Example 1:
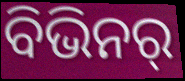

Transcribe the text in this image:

ବିଭିନର୍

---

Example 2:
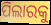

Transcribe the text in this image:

ପିଲାରକୁ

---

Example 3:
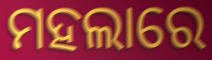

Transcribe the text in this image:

ମହଲାରେ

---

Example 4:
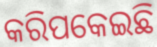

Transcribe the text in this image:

କରିପକେଇଛି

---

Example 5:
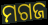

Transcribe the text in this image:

ମଗଜ